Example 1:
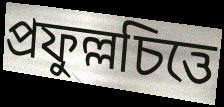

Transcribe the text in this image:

প্রফুল্লচিত্তে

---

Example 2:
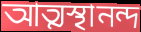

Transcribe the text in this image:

আত্মস্থানন্দ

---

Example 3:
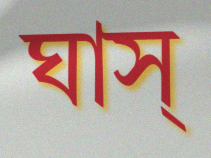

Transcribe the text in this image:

ঘাস্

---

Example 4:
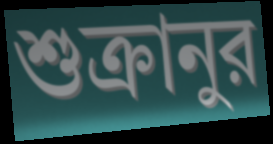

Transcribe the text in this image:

শুক্রানুর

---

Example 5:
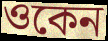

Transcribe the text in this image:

ওকেন